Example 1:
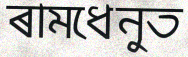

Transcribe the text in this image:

ৰামধেনুত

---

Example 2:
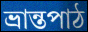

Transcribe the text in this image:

ভ্ৰান্তপাঠ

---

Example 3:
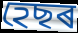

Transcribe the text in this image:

হেছৰ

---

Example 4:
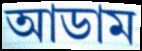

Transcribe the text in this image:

আডাম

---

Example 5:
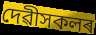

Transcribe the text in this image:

দেৱীসকলৰ